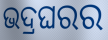
ଭଦ୍ରଘରର